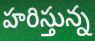
హరిస్తున్న